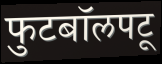
फुटबॉलपटू